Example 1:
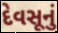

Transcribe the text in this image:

દેવસૂનું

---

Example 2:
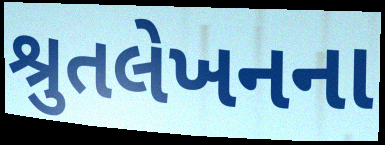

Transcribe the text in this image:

શ્રુતલેખનના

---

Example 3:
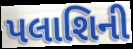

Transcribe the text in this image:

પલાશિની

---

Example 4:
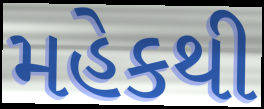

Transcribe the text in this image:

મહેકથી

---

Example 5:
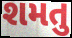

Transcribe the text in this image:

શમતુ